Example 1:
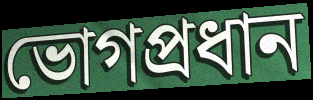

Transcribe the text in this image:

ভোগপ্রধান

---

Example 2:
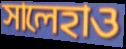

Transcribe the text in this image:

সালেহাও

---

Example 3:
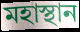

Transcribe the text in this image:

মহাস্থান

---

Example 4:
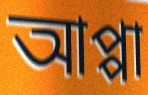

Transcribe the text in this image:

আপ্পা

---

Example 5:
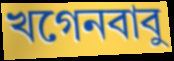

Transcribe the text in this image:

খগেনবাবু